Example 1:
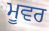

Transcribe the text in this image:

ਮੂਵਰ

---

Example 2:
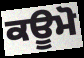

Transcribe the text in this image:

ਕਊਮੋ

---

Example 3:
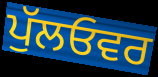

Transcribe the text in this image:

ਪੁੱਲਓਵਰ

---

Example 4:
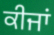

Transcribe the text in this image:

ਕੀਜਾਂ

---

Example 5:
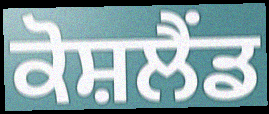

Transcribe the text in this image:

ਕੋਸ਼ਲੈਂਡ